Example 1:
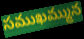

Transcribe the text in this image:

సముఖమ్మున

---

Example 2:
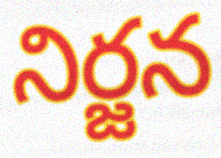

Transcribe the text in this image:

నిర్జన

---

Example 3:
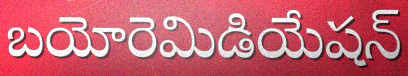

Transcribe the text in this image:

బయోరెమిడియేషన్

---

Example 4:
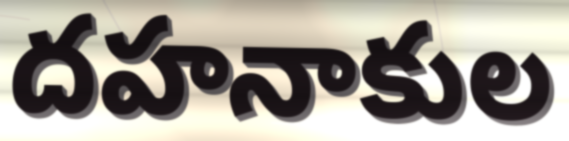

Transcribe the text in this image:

దహనాకుల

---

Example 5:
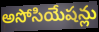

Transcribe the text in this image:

అసోసియేషన్లు